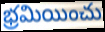
భ్రమియించు